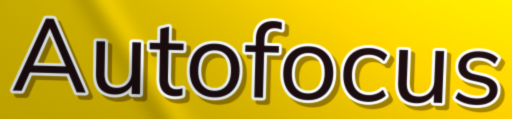
Autofocus